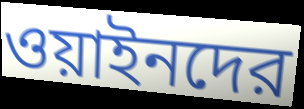
ওয়াইনদের